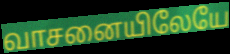
வாசனையிலேயே